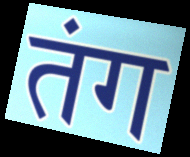
तंग